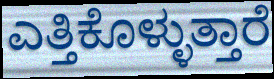
ಎತ್ತಿಕೊಳ್ಳುತ್ತಾರೆ